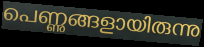
പെണ്ണുങ്ങളായിരുന്നു